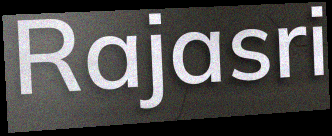
Rajasri